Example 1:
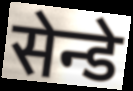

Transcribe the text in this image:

सेन्डे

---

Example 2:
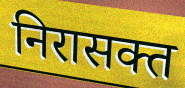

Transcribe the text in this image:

निरासक्त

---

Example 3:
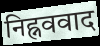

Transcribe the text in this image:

निह्नववाद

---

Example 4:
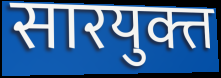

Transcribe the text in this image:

सारयुक्त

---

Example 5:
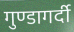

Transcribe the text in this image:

गुण्डागर्दी